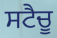
ਸਟੈਚੂ